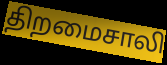
திறமைசாலி